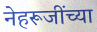
नेहरूजींच्या